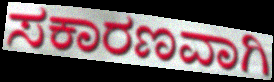
ಸಕಾರಣವಾಗಿ